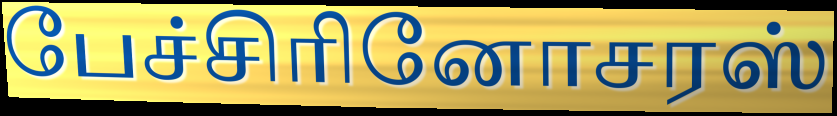
பேச்சிரினோசரஸ்